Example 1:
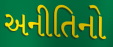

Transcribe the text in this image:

અનીતિનો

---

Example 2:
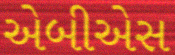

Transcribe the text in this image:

એબીએસ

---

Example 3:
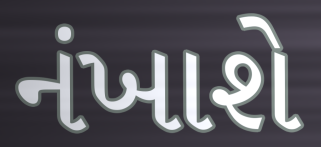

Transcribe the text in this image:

નંખાશે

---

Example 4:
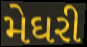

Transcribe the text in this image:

મેઘરી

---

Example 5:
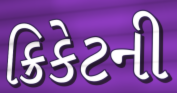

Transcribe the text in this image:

ક્રિકેટની